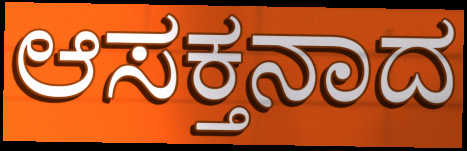
ಆಸಕ್ತನಾದ